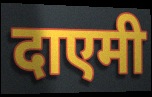
दाएमी